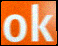
ok